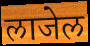
लाजेल